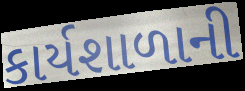
કાર્યશાળાની